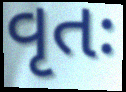
વૃતઃ